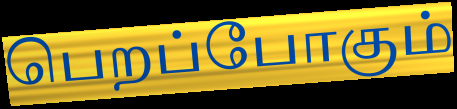
பெறப்போகும்